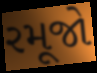
રમૂજો